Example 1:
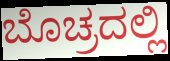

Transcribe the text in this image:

ಬೊಚ್ರದಲ್ಲಿ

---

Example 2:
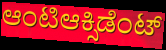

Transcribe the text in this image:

ಆಂಟಿಆಕ್ಸಿಡೆಂಟ್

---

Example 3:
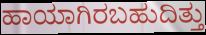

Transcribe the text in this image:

ಹಾಯಾಗಿರಬಹುದಿತ್ತು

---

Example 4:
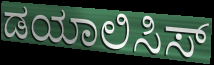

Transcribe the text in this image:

ಡಯಾಲಿಸಿಸ್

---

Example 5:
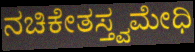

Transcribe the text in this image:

ನಚಿಕೇತಸ್ತ್ವಮೇಧಿ